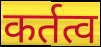
कर्तत्व